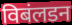
विबंलडन